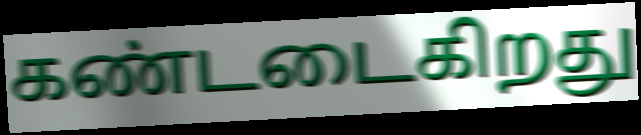
கண்டடைகிறது